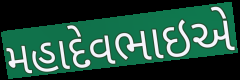
મહાદેવભાઇએ